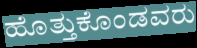
ಹೊತ್ತುಕೊಂಡವರು